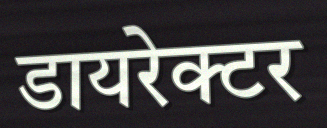
डायरेक्टर